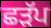
ਛੜੱਪ